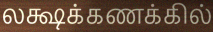
லக்ஷக்கணக்கில்